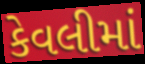
કેવલીમાં